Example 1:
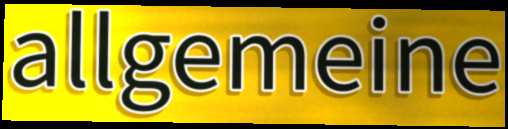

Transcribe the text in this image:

allgemeine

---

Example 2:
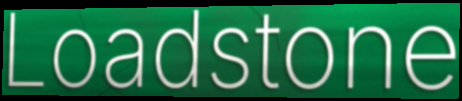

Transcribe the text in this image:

Loadstone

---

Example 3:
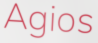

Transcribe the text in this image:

Agios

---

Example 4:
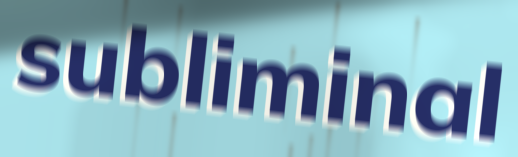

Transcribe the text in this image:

subliminal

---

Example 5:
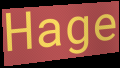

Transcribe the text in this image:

Hage